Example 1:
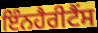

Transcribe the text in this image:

ਇੰਨਹੈਰੀਟੈੰਸ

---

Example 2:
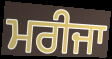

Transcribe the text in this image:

ਮਰੀਜਾ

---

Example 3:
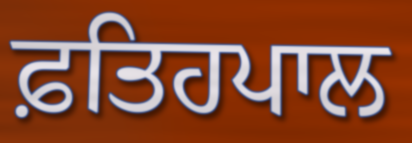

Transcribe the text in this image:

ਫ਼ਤਿਹਪਾਲ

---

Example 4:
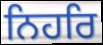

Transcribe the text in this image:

ਨਿਹਰਿ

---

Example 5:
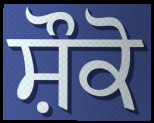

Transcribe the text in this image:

ਸ਼ੌਕੋ